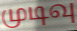
முடிவு